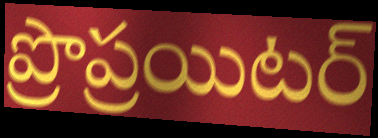
ప్రొప్రయిటర్